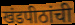
खंडपीठांची